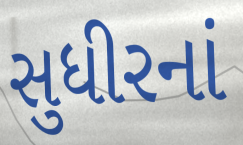
સુધીરનાં